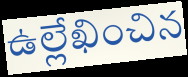
ఉల్లేఖించిన